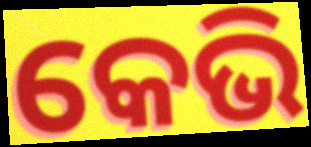
କେଭି